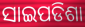
ସାଇପଡିଶା